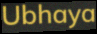
Ubhaya